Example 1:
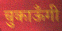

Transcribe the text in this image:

चुकाऊँगी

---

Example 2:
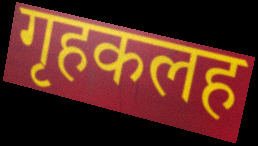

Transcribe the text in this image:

गृहकलह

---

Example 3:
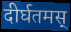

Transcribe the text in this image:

दीर्घतमस्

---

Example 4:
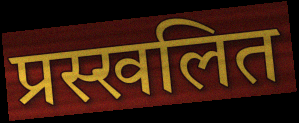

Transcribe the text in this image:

प्रस्खलित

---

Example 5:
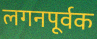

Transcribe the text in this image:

लगनपूर्वक